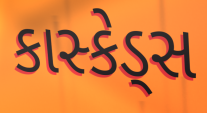
કાસ્કેડ્સ